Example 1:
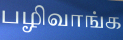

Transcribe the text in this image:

பழிவாங்க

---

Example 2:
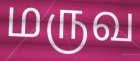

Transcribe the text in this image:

மருவ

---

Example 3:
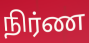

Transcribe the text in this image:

நிர்ண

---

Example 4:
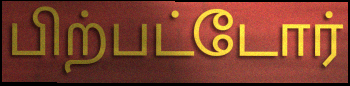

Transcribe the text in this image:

பிற்பட்டோர்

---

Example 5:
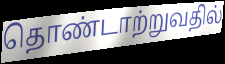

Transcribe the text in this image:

தொண்டாற்றுவதில்